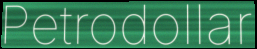
Petrodollar